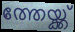
ത്തേയ്ക്ക്